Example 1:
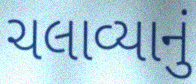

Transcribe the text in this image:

ચલાવ્યાનું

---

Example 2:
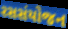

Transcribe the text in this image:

રસસંયોજન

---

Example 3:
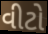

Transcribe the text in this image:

વીટો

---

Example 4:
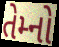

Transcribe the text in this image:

તેમ્નો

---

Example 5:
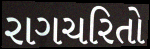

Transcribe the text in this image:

રાગચરિતો